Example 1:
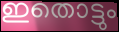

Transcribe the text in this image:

ഇതൊട്ടും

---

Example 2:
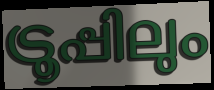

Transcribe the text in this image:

ട്രൂപ്പിലും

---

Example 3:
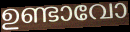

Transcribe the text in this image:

ഉണ്ടാവോ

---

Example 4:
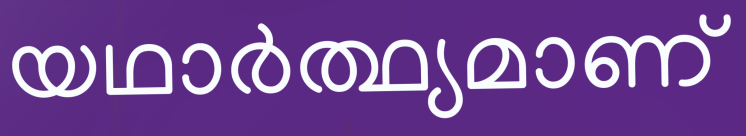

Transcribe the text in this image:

യഥാർത്ഥ്യമാണ്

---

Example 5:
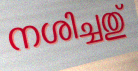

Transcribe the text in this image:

നശിച്ചതു്